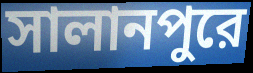
সালানপুরে